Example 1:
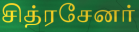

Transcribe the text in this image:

சித்ரசேனர்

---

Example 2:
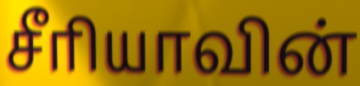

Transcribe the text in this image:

சீரியாவின்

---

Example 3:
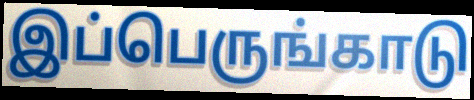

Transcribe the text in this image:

இப்பெருங்காடு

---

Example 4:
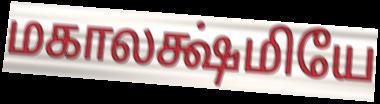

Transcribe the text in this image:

மகாலக்ஷ்மியே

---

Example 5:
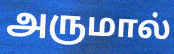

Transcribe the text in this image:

அருமால்